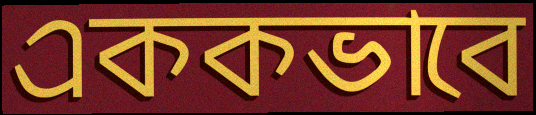
এককভাবে